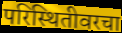
परिस्थितीवरचा